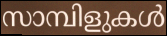
സാമ്പിളുകൾ